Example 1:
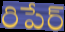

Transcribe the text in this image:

రిపేర్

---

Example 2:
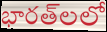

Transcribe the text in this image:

భారత్‌లలో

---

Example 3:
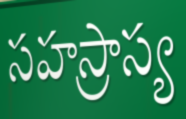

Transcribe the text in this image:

సహస్రాస్య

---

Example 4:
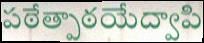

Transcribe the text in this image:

పఠేత్పాఠయేద్వాపి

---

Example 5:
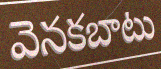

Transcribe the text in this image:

వెనకబాటు